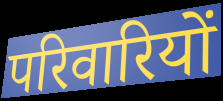
परिवारियों